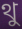
থু